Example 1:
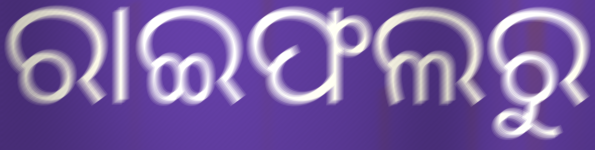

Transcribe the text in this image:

ରାଇଫଲରୁ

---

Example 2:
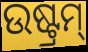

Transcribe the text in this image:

ଉଷ୍ଟ୍ରମ୍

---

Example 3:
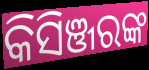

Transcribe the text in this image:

କିସିଞ୍ଜରଙ୍କ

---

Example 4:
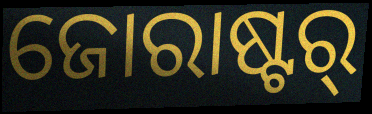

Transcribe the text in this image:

ଜୋରାଷ୍ଟର୍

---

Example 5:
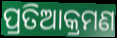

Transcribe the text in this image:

ପ୍ରତିଆକ୍ରମଣ